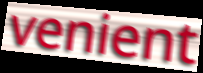
venient